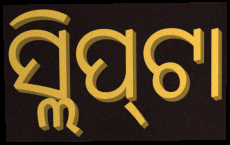
ସ୍ଲିପ୍‌ଟା